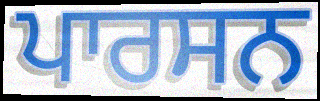
ਪਾਰਸਨ